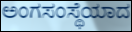
ಅಂಗಸಂಸ್ಥೆಯಾದ